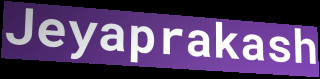
Jeyaprakash